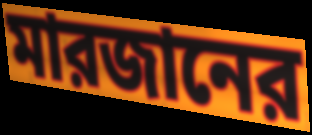
মারজানের